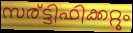
സര്ട്ടിഫിക്കറ്റും